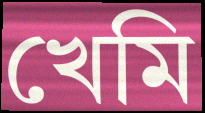
খেমি